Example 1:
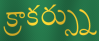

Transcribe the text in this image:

క్రాకర్స్ను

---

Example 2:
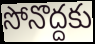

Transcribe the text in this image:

సోనొద్దకు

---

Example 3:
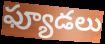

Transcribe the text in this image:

ఫ్యూడలు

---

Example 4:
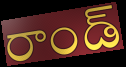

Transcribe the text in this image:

రాండ్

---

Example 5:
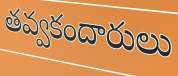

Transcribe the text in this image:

తవ్వకందారులు